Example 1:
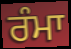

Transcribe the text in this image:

ਰੰਮਾ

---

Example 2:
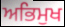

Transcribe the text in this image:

ਅਭਿਮੁਖ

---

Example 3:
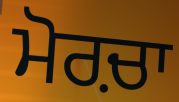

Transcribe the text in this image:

ਮੋਰ਼ਚਾ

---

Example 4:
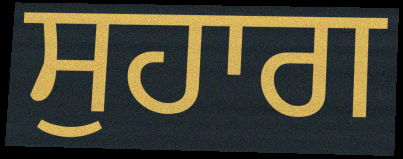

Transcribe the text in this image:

ਸੁਹਾਗ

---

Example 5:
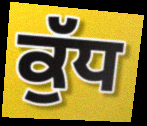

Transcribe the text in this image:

ਕੁੱਧ